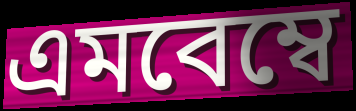
এমবেম্বে